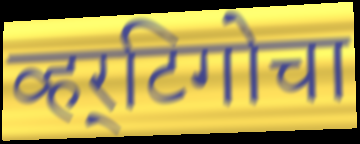
व्हर्टिगोचा